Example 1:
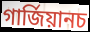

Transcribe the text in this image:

গাৰ্জিয়ানচ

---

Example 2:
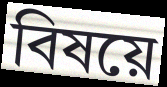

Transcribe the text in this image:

বিষয়ে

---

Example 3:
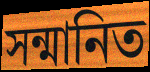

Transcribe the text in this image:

সন্মানিত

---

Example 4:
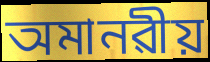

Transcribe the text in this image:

অমানৱীয়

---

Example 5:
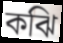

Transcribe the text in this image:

কঝি